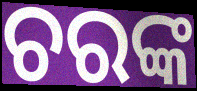
ଚରଙ୍କ